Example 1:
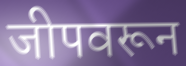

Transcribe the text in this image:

जीपवरून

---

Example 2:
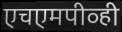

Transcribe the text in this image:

एचएमपीव्ही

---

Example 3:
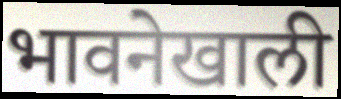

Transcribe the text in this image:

भावनेखाली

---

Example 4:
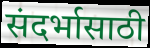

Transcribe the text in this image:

संदर्भासाठी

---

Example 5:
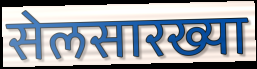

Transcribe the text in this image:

सेलसारख्या